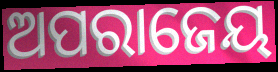
ଅପରାଜେୟ